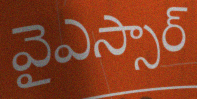
వైఎస్సార్